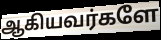
ஆகியவர்களே